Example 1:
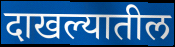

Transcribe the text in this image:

दाखल्यातील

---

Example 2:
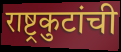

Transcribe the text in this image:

राष्ट्रकुटांची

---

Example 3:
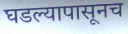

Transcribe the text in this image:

घडल्यापासूनच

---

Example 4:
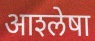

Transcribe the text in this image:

आश्‍लेषा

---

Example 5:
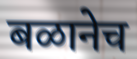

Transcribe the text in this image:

बळानेच